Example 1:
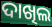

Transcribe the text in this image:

ଦାଖିଲ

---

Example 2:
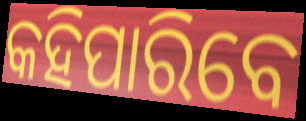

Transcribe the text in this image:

କହିପାରିବେ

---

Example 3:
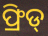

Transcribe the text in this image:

ଫ୍ରିଡ୍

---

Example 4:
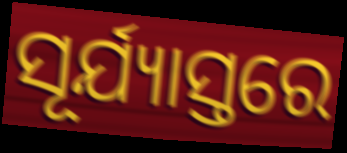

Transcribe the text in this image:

ସୂର୍ଯ୍ୟାସ୍ତରେ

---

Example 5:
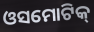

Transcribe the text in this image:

ଓସମୋଟିକ୍